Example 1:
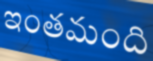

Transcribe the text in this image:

ఇంతమంది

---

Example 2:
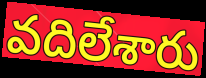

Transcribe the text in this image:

వదిలేశారు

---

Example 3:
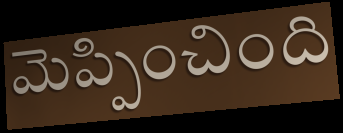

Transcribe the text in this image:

మెప్పించింది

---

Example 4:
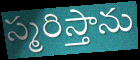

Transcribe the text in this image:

స్మరిస్తాను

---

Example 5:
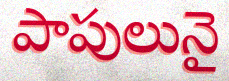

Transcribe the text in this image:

పాపులునై